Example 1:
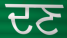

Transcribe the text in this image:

ਦਣ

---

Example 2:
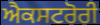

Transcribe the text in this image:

ਐਕਸਟਰੋਰੀ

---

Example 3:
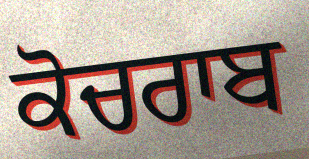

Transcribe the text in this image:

ਕੋਚਰਾਬ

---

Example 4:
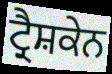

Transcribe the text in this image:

ਟ੍ਰੈਸ਼ਕੇਨ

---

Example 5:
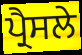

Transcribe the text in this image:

ਪ੍ਰੈਸਲੇ